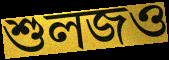
শুলজও